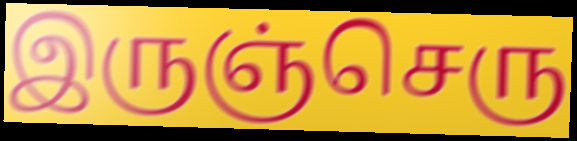
இருஞ்செரு